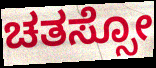
ಚತಸ್ಸೋ